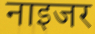
नाइजर